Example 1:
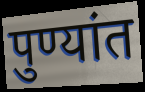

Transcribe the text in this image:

पुण्यांत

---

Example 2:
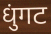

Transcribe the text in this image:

धुंगट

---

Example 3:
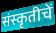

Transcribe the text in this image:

संस्कृतीचें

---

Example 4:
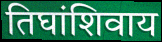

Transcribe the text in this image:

तिघांशिवाय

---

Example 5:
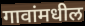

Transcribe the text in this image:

गावांमधील